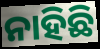
ନାହିଛି